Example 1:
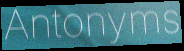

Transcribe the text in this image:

Antonyms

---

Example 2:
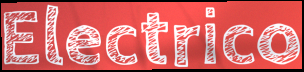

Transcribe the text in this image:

Electrico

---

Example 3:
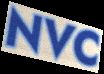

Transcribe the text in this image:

NVC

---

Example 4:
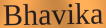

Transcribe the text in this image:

Bhavika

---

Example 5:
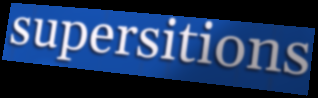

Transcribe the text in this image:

supersitions